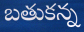
బతుకన్న